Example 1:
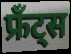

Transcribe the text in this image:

फ्रँट्स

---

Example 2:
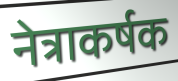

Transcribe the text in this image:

नेत्राकर्षक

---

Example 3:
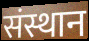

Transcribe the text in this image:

संस्थान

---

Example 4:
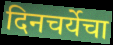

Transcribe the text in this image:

दिनचर्येचा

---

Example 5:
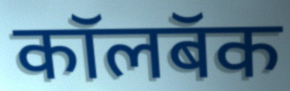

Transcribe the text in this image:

कॉलबॅक